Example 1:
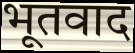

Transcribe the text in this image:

भूतवाद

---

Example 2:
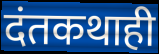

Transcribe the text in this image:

दंतकथाही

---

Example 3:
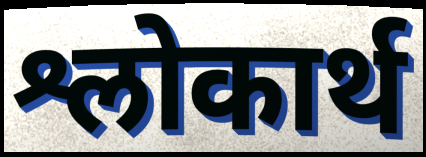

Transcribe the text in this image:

श्लोकार्थ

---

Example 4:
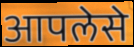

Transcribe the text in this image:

आपलेसे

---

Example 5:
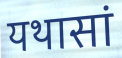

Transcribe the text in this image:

यथासां